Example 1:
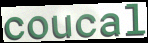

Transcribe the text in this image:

coucal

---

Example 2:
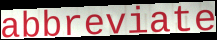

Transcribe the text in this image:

abbreviate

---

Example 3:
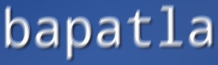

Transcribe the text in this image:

bapatla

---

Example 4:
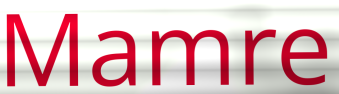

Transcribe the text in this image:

Mamre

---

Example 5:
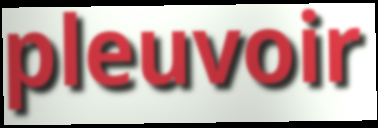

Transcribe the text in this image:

pleuvoir